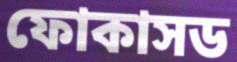
ফোকাসড